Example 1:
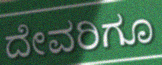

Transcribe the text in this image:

ದೇವರಿಗೂ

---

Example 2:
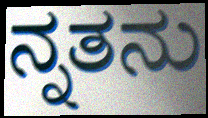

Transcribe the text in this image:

ನ್ನತನು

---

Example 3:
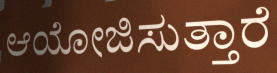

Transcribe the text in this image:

ಆಯೋಜಿಸುತ್ತಾರೆ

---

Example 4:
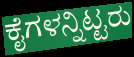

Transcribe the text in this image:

ಕೈಗಳನ್ನಿಟ್ಟರು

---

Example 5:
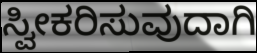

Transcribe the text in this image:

ಸ್ವೀಕರಿಸುವುದಾಗಿ